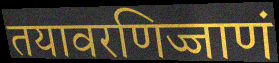
तयावरणिज्जाणं